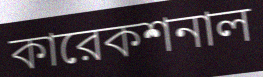
কারেকশনাল